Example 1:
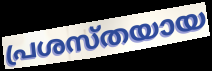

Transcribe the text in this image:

പ്രശസ്തയായ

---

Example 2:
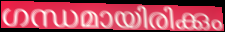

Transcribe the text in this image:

ഗന്ധമായിരിക്കും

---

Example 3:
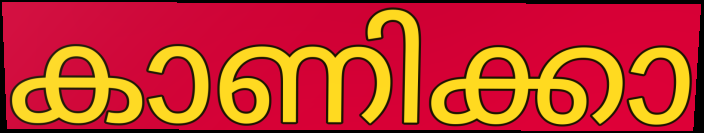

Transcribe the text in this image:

കാണിക്കാ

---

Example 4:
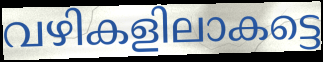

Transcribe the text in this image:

വഴികളിലാകട്ടെ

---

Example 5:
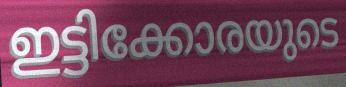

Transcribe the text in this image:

ഇട്ടിക്കോരയുടെ